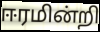
ஈரமின்றி